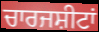
ਚਾਰਜਸ਼ੀਟਾਂ